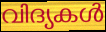
വിദ്യകൾ